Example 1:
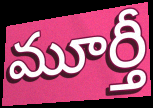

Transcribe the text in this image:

మూర్తీ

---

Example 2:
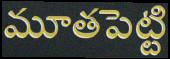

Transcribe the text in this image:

మూతపెట్టి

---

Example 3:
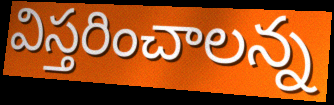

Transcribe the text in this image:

విస్తరించాలన్న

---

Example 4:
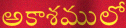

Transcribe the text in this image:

అకాశములో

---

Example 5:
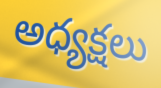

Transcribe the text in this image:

అధ్యక్షలు